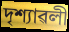
দৃশ্যাৱলী